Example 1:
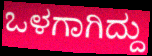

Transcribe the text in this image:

ಒಳಗಾಗಿದ್ದು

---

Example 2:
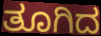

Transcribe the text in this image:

ತೂಗಿದ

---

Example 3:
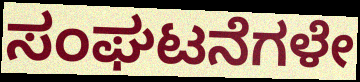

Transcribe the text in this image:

ಸಂಘಟನೆಗಳೇ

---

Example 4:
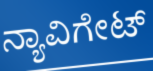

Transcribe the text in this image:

ನ್ಯಾವಿಗೇಟ್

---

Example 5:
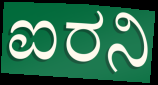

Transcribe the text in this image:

ಐರನಿ